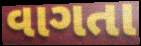
વાગતા